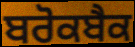
ਬਰੋਕਬੈਕ